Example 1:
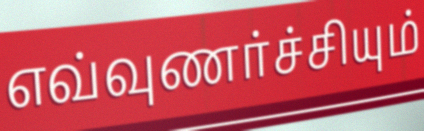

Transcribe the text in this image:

எவ்வுணர்ச்சியும்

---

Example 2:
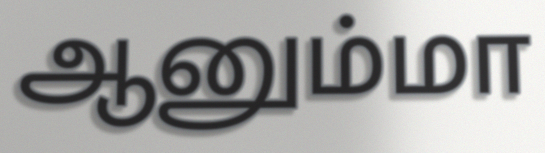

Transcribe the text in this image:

ஆனும்மா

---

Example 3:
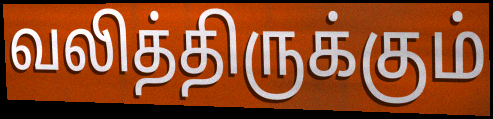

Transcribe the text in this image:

வலித்திருக்கும்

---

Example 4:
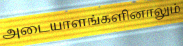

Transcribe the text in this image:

அடையாளங்களினாலும்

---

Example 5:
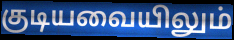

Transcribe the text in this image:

குடியவையிலும்